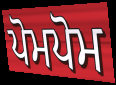
ਪੋਮਪੋਮ